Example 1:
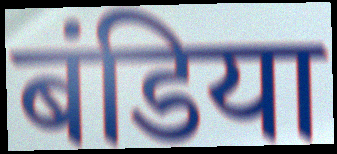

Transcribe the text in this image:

बंडिया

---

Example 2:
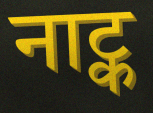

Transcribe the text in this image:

नाट्क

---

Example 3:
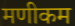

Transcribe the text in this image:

मणीकम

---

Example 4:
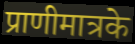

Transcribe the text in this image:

प्राणीमात्रके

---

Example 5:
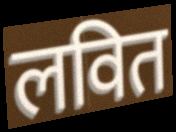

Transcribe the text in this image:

लवित